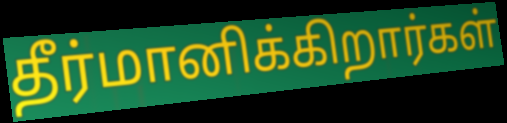
தீர்மானிக்கிறார்கள்